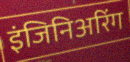
इंजिनिअरिंग